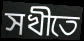
সখীতে